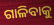
ଗାଳିବାକୁ